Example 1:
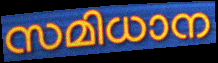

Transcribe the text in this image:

സമിധാന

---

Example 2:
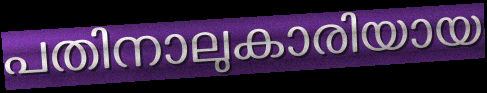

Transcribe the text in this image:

പതിനാലുകാരിയായ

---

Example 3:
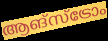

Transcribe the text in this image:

ആങ്സ്ട്രോം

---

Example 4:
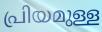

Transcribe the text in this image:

പ്രിയമുള്ള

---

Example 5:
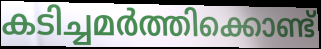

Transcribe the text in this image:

കടിച്ചമർത്തിക്കൊണ്ട്